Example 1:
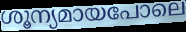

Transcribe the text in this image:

ശൂന്യമായപോലെ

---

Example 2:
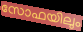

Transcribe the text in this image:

സോഫയിലും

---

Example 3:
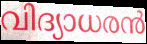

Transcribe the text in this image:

വിദ്യാധരൻ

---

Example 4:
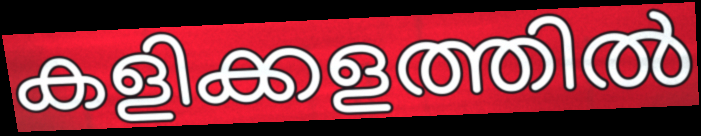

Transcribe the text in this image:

കളിക്കളത്തിൽ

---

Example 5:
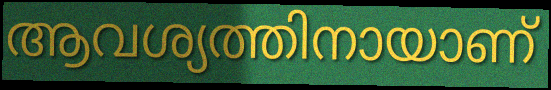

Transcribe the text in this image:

ആവശ്യത്തിനായാണ്